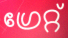
ഗ്രേറ്റ്